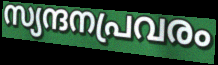
സ്യന്ദനപ്രവരം